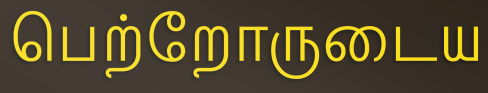
பெற்றோருடைய